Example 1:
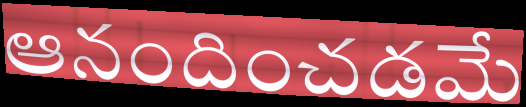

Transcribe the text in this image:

ఆనందించడమే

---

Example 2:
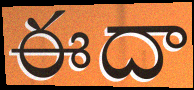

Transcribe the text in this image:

ఈదా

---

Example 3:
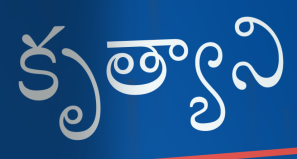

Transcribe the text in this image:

కృత్యాని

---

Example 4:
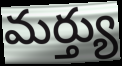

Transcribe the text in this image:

మర్త్యు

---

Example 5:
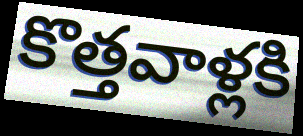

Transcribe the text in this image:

కొత్తవాళ్లకి